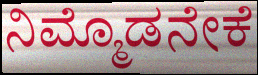
ನಿಮ್ಮೊಡನೇಕೆ